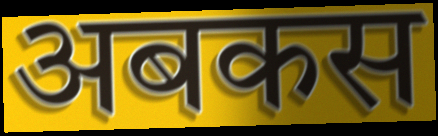
अबकस